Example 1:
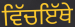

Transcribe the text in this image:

ਵਿੱਚਇੱਥੇ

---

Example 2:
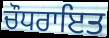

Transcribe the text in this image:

ਚੌਧਰਾਇਤ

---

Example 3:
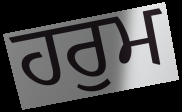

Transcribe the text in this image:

ਹਰੁਮ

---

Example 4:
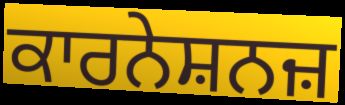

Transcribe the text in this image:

ਕਾਰਨੇਸ਼ਨਜ਼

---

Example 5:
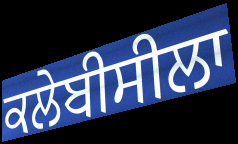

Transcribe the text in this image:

ਕਲੇਬੀਸੀਲਾ